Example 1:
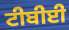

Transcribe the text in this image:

ਟੀਬੀਈ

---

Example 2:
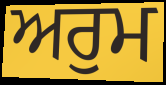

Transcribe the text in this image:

ਅਰੁਮ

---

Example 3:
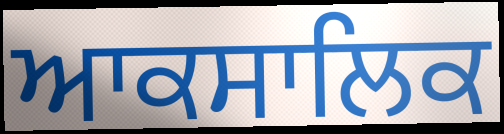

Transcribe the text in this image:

ਆਕਸਾਲਿਕ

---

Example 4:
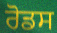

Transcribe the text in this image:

ਰੋਡਸ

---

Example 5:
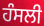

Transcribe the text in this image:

ਹੰਸਲੀ